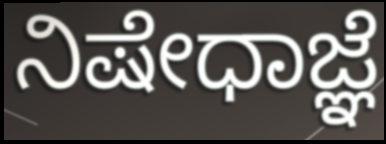
ನಿಷೇಧಾಜ್ಞೆ